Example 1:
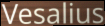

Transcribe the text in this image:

Vesalius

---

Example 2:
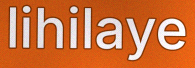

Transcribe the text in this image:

lihilaye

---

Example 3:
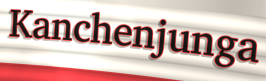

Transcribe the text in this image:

Kanchenjunga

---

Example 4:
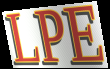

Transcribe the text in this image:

LPE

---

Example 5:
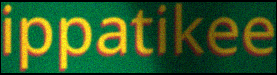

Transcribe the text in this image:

ippatikee